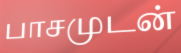
பாசமுடன்